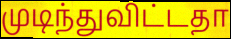
முடிந்துவிட்டதா